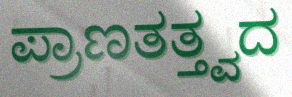
ಪ್ರಾಣತತ್ತ್ವದ